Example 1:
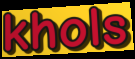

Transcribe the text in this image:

khols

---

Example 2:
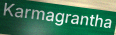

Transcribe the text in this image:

Karmagrantha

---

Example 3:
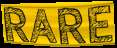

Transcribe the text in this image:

RARE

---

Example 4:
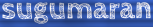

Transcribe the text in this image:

sugumaran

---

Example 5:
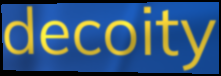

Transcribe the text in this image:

decoity